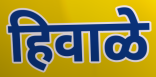
हिवाळे